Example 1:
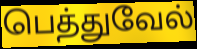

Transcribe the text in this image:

பெத்துவேல்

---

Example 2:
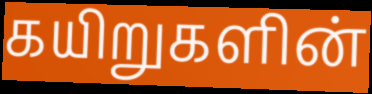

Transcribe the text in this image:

கயிறுகளின்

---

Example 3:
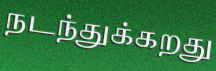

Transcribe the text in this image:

நடந்துக்கறது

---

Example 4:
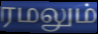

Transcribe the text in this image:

ரமலும்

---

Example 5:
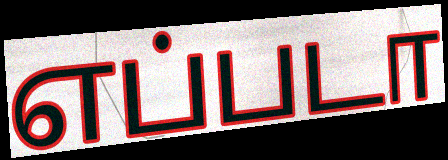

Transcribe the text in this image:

எப்படா